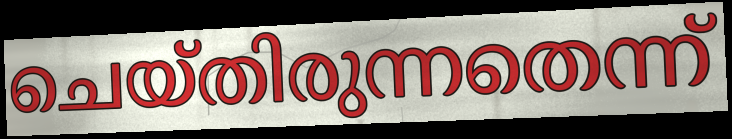
ചെയ്തിരുന്നതെന്ന്